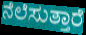
ನೆಲೆಸುತ್ತಾರೆ